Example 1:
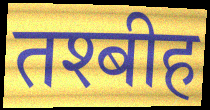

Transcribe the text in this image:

तश्बीह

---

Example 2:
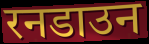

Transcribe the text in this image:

रनडाउन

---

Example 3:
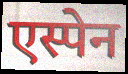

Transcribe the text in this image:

एस्पेन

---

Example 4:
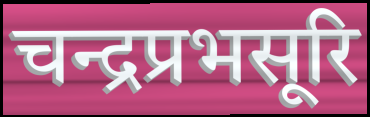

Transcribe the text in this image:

चन्द्रप्रभसूरि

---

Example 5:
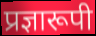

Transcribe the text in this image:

प्रज्ञारूपी